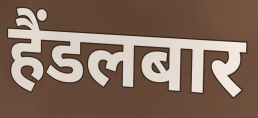
हैंडलबार